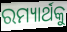
ରମ୍ୟାର୍ଥକୁ